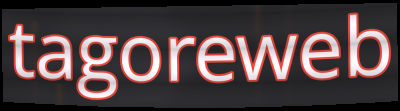
tagoreweb